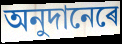
অনুদানেৰে